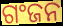
ଗଂଜନ